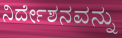
ನಿರ್ದೇಶನವನ್ನು